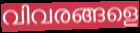
വിവരങ്ങളെ